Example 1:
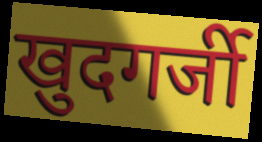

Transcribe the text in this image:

खुदगर्जी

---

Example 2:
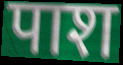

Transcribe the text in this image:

पाश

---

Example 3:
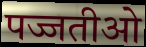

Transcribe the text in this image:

पज्जतीओ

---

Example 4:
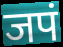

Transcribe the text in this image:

जपं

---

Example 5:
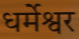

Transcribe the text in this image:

धर्मेश्वर